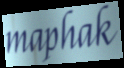
maphak